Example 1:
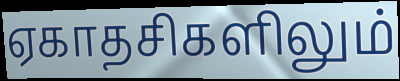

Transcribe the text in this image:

ஏகாதசிகளிலும்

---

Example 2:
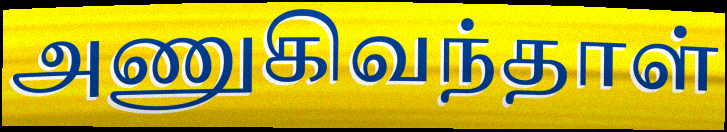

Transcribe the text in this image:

அணுகிவந்தாள்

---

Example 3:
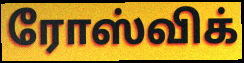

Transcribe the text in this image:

ரோஸ்விக்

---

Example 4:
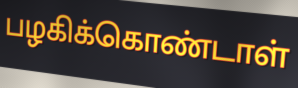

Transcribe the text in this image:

பழகிக்கொண்டாள்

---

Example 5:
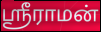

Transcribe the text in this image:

ஸ்ரீராமன்